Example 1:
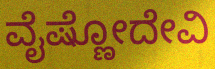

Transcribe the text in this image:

ವೈಷ್ಣೋದೇವಿ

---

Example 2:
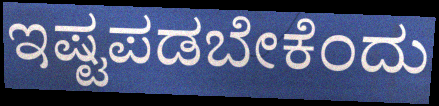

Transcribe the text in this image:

ಇಷ್ಟಪಡಬೇಕೆಂದು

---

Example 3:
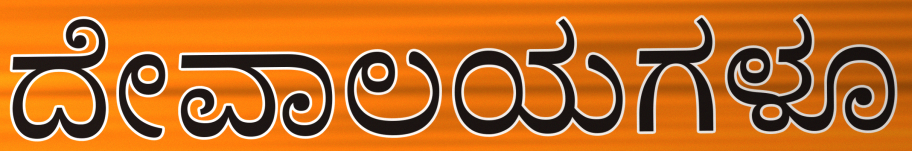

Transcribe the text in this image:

ದೇವಾಲಯಗಳೂ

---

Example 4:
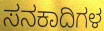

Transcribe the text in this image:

ಸನಕಾದಿಗಳ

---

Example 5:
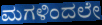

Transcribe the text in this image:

ಮಗಳಿಂದಲೇ